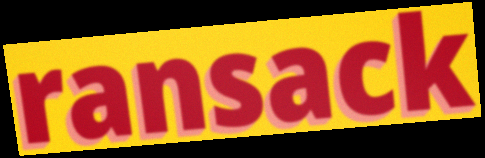
ransack